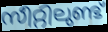
സീറ്റിലുണ്ട്